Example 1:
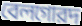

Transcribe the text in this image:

বেলগোরদ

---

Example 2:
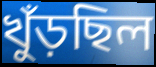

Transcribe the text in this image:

খুঁড়ছিল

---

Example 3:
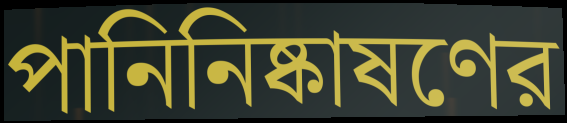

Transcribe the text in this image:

পানিনিষ্কাষণের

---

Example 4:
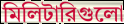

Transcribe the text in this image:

মিলিটারিগুলো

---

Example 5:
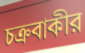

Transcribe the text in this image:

চক্রবাকীর